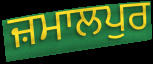
ਜ਼ਮਾਲਪੁਰ